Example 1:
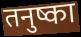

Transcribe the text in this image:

तनुष्का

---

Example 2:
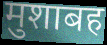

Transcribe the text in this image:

मुशाबह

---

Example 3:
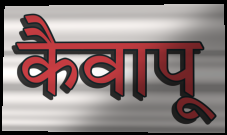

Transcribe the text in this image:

कैवापू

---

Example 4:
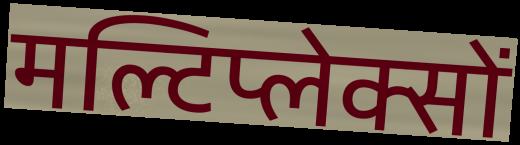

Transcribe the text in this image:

मल्टिप्लेक्सों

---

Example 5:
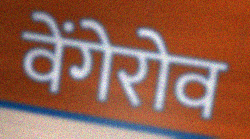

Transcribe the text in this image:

वेंगेरोव